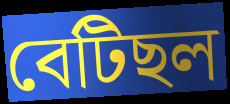
বেটিছল